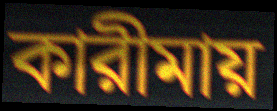
কারীমায়